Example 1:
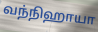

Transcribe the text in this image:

வந்நிஹாயா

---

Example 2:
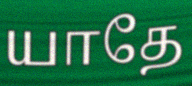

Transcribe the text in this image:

யாதே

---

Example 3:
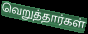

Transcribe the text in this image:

வெறுத்தார்கள்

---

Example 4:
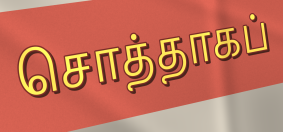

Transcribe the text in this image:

சொத்தாகப்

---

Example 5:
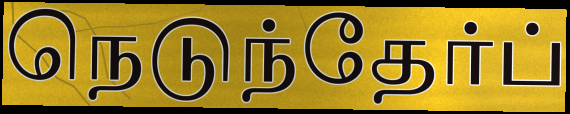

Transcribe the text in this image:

நெடுந்தேர்ப்